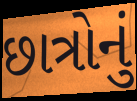
છાત્રોનું